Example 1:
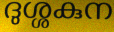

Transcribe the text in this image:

ദുശ്ശകുന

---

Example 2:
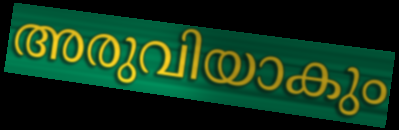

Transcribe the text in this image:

അരുവിയാകും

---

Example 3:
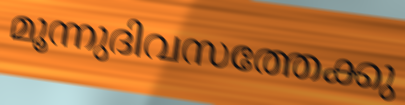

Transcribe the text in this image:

മൂന്നുദിവസത്തേക്കു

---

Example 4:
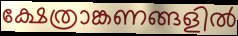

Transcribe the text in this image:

ക്ഷേത്രാങ്കണങ്ങളിൽ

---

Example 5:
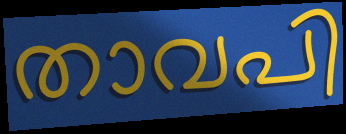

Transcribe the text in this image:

താവപി